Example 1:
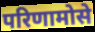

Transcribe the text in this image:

परिणामोसे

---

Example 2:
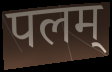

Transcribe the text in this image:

पलम्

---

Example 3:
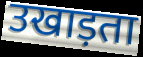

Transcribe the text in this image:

उखाड़ता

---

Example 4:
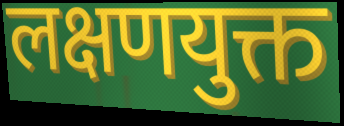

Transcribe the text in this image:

लक्षणयुक्त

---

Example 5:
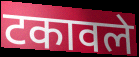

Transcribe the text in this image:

टकावले